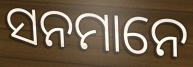
ସନମାନେ